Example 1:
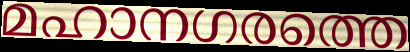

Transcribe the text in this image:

മഹാനഗരത്തെ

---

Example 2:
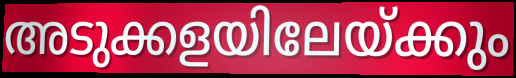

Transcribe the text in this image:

അടുക്കളയിലേയ്ക്കും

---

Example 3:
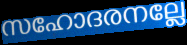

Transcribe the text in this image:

സഹോദരനല്ലേ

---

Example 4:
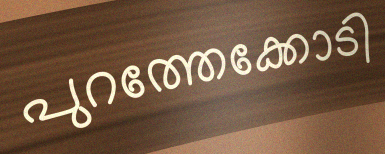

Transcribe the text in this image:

പുറത്തേക്കോടി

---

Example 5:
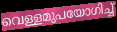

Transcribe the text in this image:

വെള്ളമുപയോഗിച്ച്